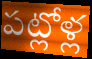
పట్లోళ్ల